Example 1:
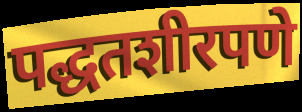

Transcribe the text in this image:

पद्धतशीरपणे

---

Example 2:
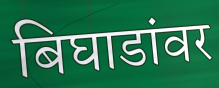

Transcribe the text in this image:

बिघाडांवर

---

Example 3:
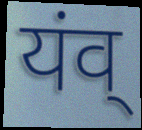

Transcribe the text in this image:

यंव्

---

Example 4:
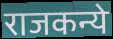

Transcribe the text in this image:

राजकन्ये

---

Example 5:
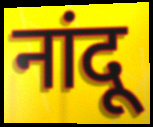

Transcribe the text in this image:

नांदू